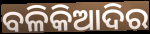
ବଳିକିଆଦିର